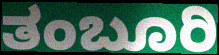
ತಂಬೂರಿ